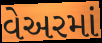
વેઅરમાં